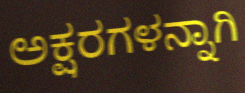
ಅಕ್ಷರಗಳನ್ನಾಗಿ